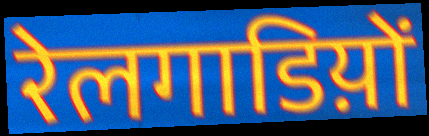
रेलगाडिय़ों